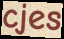
cjes